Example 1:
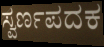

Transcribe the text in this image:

ಸ್ವರ್ಣಪದಕ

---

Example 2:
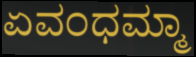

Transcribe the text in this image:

ಏವಂಧಮ್ಮಾ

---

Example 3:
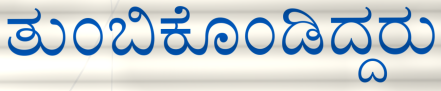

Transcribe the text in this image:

ತುಂಬಿಕೊಂಡಿದ್ದರು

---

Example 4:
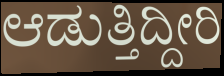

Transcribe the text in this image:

ಆಡುತ್ತಿದ್ದೀರಿ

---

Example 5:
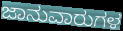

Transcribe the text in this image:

ಜಾನುವಾರುಗಳ